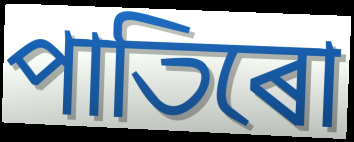
পাতিৰো